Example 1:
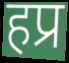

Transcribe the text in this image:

हप्र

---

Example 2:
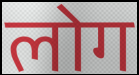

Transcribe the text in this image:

लोग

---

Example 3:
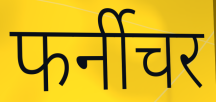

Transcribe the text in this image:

फर्नीचर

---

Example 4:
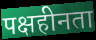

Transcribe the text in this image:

पक्षहीनता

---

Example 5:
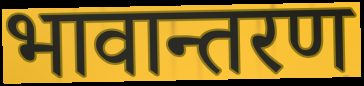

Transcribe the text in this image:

भावान्तरण